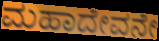
ಮಹಾದೇವನೇ